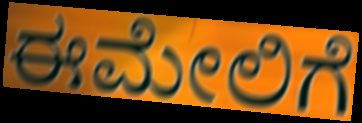
ಈಮೇಲಿಗೆ